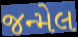
જન્મેલ